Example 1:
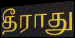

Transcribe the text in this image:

தீராது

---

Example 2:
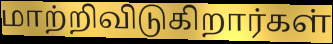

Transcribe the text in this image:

மாற்றிவிடுகிறார்கள்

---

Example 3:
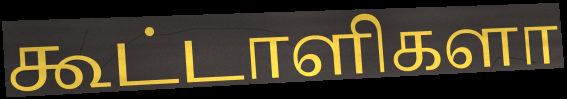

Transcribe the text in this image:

கூட்டாளிகளா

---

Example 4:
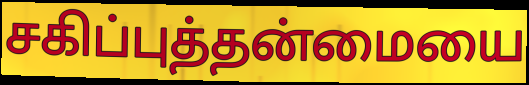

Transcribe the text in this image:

சகிப்புத்தன்மையை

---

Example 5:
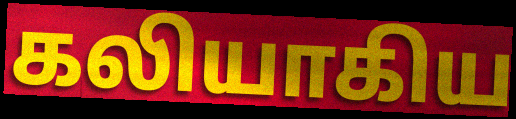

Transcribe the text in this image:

கலியாகிய